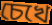
চেখে